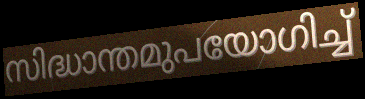
സിദ്ധാന്തമുപയോഗിച്ച്